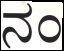
ನಂ